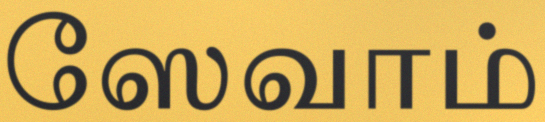
ஸேவாம்